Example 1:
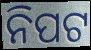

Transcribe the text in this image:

ନିପଟ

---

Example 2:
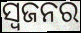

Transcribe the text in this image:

ସ୍ୱଜନର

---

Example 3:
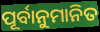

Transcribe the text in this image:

ପୂର୍ବାନୁମାନିତ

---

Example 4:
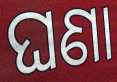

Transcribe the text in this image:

ଘଣା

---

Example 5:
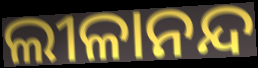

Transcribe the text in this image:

ଲୀଳାନନ୍ଦ